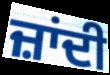
ਜ਼ਾਂਦੀ